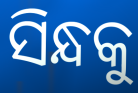
ସିନ୍ଧକୁ